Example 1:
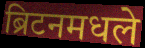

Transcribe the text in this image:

ब्रिटनमधले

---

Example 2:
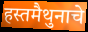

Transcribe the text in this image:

हस्तमैथुनाचे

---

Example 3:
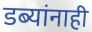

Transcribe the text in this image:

डब्यांनाही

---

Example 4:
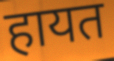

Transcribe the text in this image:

हायत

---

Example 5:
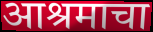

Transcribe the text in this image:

आश्रमाचा